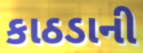
કાઠડાની